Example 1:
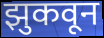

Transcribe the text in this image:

झुकवून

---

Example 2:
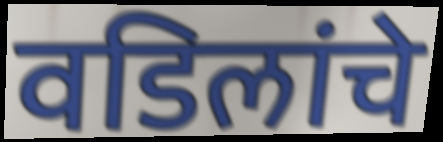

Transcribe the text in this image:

वडिलांचे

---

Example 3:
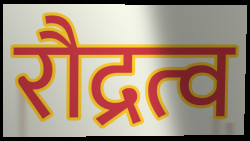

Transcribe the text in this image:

रौद्रत्व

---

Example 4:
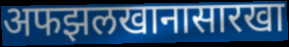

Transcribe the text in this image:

अफझलखानासारखा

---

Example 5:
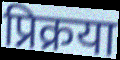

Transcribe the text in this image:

प्रिक्रया